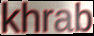
khrab